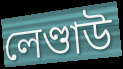
লেণ্ডাউ